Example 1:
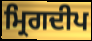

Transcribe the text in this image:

ਮ੍ਰਿਗਦੀਪ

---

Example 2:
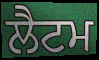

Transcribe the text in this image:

ਲੈਟਮ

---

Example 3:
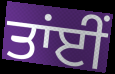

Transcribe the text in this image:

ਤਾਂਈਂ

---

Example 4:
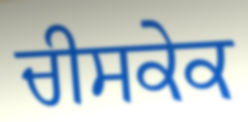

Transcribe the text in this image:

ਚੀਸਕੇਕ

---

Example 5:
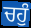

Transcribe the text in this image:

ਚਹੁੰ